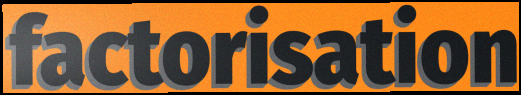
factorisation